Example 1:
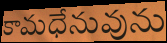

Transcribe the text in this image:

కామధేనువును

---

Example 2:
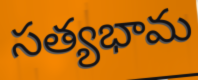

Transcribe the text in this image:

సత్యభామ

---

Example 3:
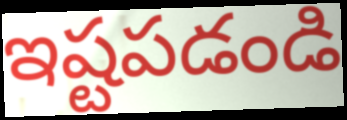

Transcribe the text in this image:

ఇష్టపడండి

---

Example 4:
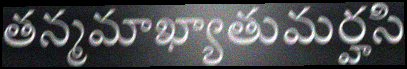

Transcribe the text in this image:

తన్మమాఖ్యాతుమర్హసి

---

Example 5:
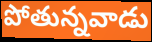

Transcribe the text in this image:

పోతున్నవాడు